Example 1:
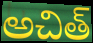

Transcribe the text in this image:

అచిత్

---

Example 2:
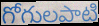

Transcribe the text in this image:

గోగులపాటి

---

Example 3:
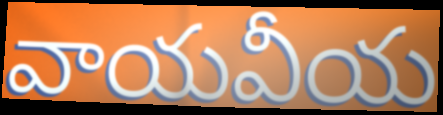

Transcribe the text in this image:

వాయవీయ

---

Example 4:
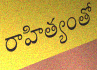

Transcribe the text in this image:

రాహిత్యంతో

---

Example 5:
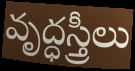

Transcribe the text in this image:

వృద్ధస్త్రీలు